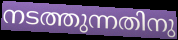
നടത്തുന്നതിനു